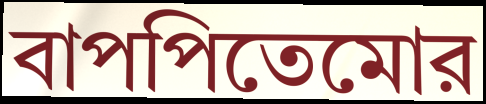
বাপপিতেমোর